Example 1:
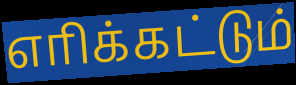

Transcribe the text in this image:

எரிக்கட்டும்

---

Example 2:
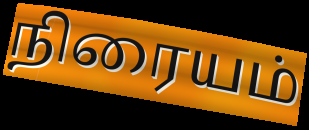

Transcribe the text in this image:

நிரையம்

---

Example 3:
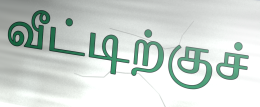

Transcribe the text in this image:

வீட்டிற்குச்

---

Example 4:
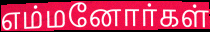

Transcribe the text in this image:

எம்மனோர்கள்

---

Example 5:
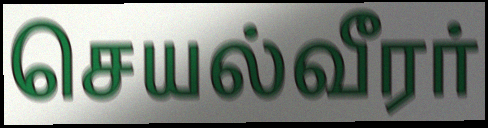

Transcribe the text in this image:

செயல்வீரர்